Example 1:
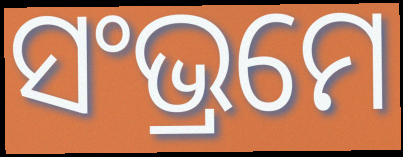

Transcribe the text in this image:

ସଂଭ୍ରମେ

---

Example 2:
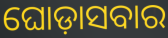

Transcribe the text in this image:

ଘୋଡ଼ାସବାର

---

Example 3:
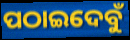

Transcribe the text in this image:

ପଠାଇଦେବୁଁ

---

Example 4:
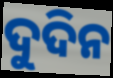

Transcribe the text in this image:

ଦୁଦିନ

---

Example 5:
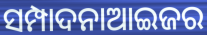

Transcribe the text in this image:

ସମ୍ପାଦନାଆଇଜର